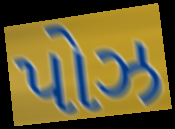
પોઝ